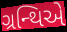
ગ્રન્થિએ